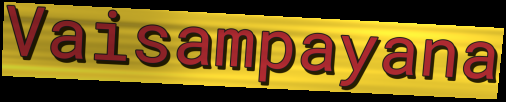
Vaisampayana